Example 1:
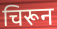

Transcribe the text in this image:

चिरून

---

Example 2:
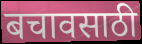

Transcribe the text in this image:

बचावसाठी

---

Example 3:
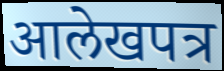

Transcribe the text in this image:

आलेखपत्र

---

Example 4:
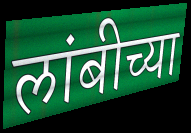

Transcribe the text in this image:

लांबीच्या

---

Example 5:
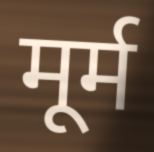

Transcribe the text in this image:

मूर्म